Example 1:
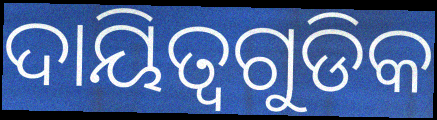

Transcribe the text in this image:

ଦାୟିତ୍ୱଗୁଡିକ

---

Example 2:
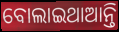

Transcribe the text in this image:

ବୋଲାଇଥାଆନ୍ତି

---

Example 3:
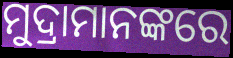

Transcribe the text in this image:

ମୁଦ୍ରାମାନଙ୍କରେ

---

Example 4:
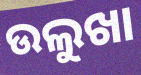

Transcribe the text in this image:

ଉଲୁଖା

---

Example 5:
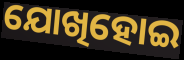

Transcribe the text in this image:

ଯୋଖିହୋଇ